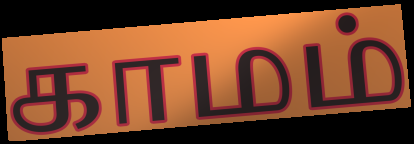
காமம்